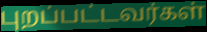
புறப்பட்டவர்கள்